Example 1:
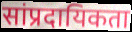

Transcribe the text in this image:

सांप्रदायिकता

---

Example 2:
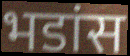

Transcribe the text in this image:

भडांस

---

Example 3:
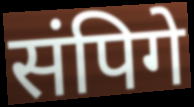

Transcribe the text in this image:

संपिगे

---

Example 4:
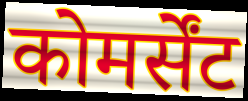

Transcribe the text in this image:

कोमर्सेंट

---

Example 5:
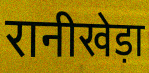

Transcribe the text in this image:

रानीखेड़ा